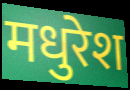
मधुरेश